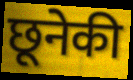
छूनेकी